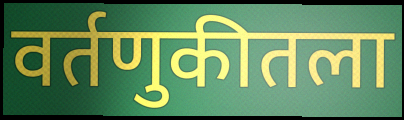
वर्तणुकीतला